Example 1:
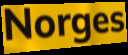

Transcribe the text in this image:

Norges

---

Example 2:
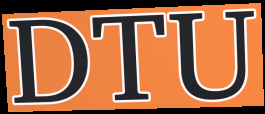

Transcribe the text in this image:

DTU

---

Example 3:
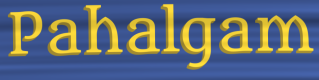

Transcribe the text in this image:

Pahalgam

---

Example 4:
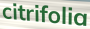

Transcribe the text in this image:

citrifolia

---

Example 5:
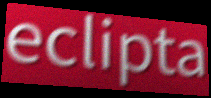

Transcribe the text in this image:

eclipta